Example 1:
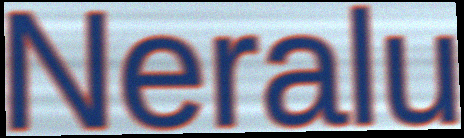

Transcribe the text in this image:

Neralu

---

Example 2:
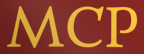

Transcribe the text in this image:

MCP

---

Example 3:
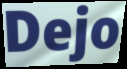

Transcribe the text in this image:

Dejo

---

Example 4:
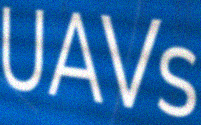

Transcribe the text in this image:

UAVs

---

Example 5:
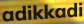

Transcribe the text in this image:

adikkadi